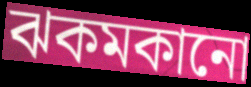
ঝকমকানো